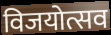
विजयोत्सव